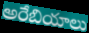
అరేబియాలు